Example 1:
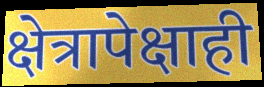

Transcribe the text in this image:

क्षेत्रापेक्षाही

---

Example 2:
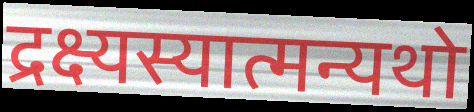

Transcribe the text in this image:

द्रक्ष्यस्यात्मन्यथो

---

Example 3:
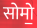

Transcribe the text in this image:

सोमो॒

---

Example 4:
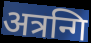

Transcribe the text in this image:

अत्रन्गि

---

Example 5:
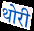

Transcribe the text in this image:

थोरी